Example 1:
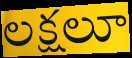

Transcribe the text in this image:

లక్షలూ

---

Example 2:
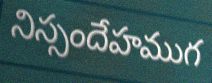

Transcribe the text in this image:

నిస్సందేహముగ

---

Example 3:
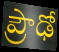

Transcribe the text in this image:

ప్రౌఢో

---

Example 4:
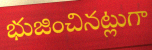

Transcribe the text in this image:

భుజించినట్లుగా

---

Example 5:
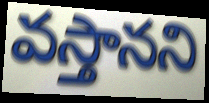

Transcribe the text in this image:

వస్తానని